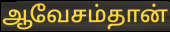
ஆவேசம்தான்